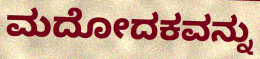
ಮದೋದಕವನ್ನು